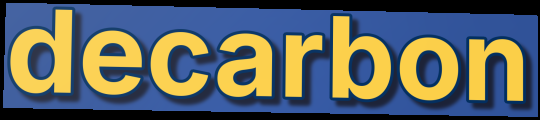
decarbon